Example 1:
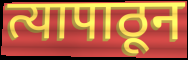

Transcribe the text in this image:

त्यापाठून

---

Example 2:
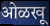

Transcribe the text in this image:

ओळखू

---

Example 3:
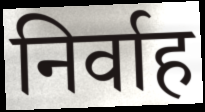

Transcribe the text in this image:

निर्वाह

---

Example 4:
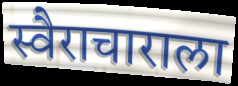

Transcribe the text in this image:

स्वैराचाराला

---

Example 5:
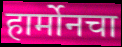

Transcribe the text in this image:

हार्मोनचा